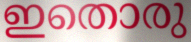
ഇതൊരു